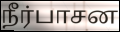
நீர்பாசன